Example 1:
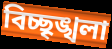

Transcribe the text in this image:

বিচ্ছৃঙ্খলা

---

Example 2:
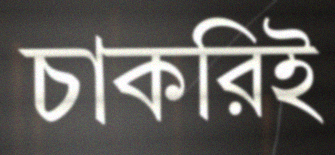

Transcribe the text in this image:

চাকরিই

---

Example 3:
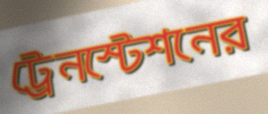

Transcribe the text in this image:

ট্রেনস্টেশনের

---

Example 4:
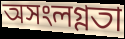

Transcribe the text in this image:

অসংলগ্নতা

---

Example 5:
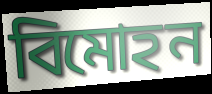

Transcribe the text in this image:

বিমোহন